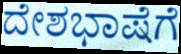
ದೇಶಭಾಷೆಗೆ